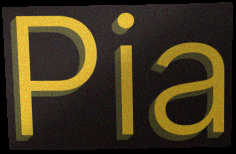
Pia